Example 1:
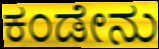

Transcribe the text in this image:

ಕಂಡೇನು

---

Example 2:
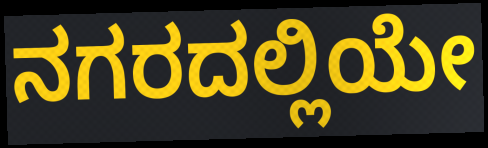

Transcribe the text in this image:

ನಗರದಲ್ಲಿಯೇ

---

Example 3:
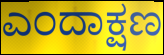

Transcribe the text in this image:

ಎಂದಾಕ್ಷಣ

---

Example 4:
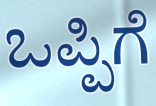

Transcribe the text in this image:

ಒಪ್ಪಿಗೆ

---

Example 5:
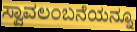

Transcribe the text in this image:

ಸ್ವಾವಲಂಬನೆಯನ್ನೂ